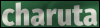
charuta